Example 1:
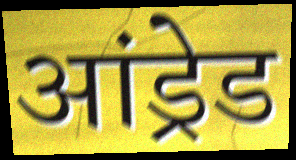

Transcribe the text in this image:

आंड्रेड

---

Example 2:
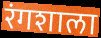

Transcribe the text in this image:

रंगशाला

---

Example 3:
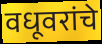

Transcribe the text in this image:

वधूवरांचे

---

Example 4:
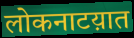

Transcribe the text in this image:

लोकनाटय़ात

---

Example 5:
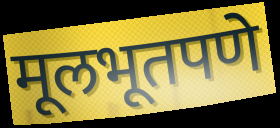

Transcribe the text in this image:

मूलभूतपणे